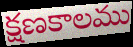
క్షణకాలము